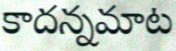
కాదన్నమాట